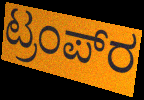
ಟ್ರಂಪ್‍ರ